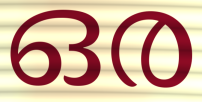
ഒര